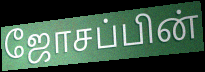
ஜோசப்பின்